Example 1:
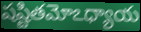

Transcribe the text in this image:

షష్టితమోఽధ్యాయ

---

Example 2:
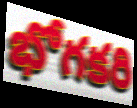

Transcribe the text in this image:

భోగకరి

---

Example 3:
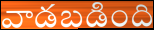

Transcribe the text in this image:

వాడబడింది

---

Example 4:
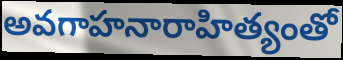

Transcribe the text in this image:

అవగాహనారాహిత్యంతో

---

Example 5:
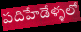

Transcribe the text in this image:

పదిహేడేళ్ళలో